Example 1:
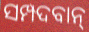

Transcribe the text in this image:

ସମ୍ପଦବାନ୍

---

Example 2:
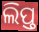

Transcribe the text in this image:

ଲିପ୍ତ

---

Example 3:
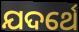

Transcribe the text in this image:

ଯଦର୍ଥେ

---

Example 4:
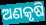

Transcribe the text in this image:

ଅଣକୃଷି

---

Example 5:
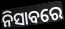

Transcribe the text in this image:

ନିସାବରେ